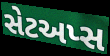
સેટઅપ્સ